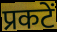
प्रकटें